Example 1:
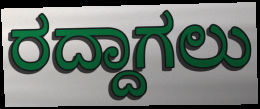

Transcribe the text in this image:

ರದ್ದಾಗಲು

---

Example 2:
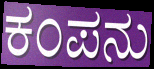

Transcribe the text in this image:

ಕಂಪನು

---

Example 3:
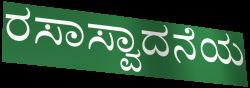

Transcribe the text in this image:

ರಸಾಸ್ವಾದನೆಯ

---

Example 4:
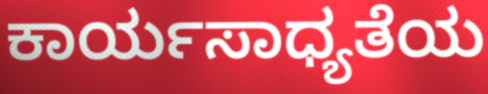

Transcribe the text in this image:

ಕಾರ್ಯಸಾಧ್ಯತೆಯ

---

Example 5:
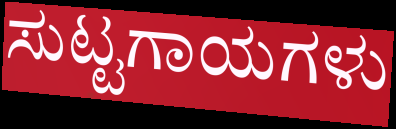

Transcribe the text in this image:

ಸುಟ್ಟಗಾಯಗಳು